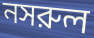
নসরুল